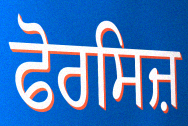
ਫੋਰਸਿਜ਼